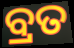
ବ୍ରତ